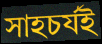
সাহচর্যই